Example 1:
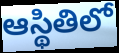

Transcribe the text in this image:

ఆస్థితిలో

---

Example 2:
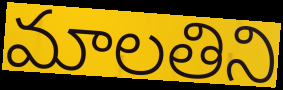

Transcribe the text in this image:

మాలతిని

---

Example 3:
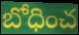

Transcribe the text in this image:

బోధించ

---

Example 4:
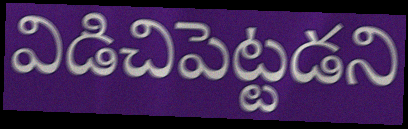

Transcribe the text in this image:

విడిచిపెట్టడని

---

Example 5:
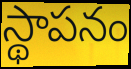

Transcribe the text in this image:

స్థాపనం